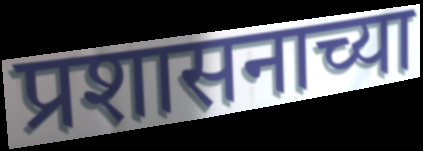
प्रशासनाच्या